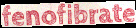
fenofibrate